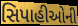
સિપાહીઓની